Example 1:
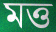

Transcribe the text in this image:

মত্ত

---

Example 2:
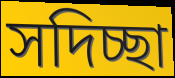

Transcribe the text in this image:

সদিচ্ছা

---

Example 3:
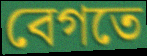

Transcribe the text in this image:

বেগতে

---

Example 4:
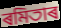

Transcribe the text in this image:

ৰমিতাৰ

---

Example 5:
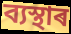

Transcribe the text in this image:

ব্যস্থাৰ